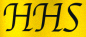
HHS